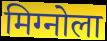
मिग्नोला